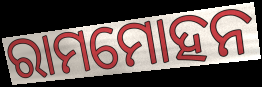
ରାମମୋହନ